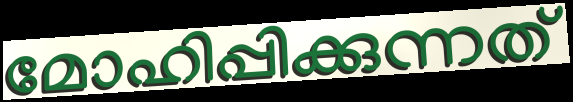
മോഹിപ്പിക്കുന്നത്